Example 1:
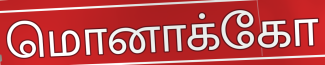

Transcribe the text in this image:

மொனாக்கோ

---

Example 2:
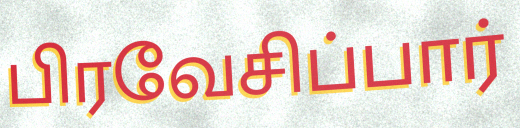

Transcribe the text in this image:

பிரவேசிப்பார்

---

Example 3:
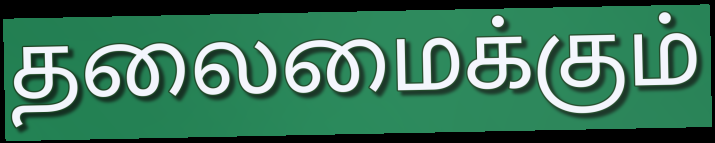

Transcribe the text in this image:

தலைமைக்கும்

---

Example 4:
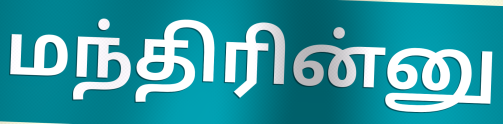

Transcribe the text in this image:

மந்திரின்னு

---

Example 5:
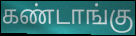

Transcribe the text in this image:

கண்டாங்கு